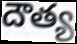
దౌత్య